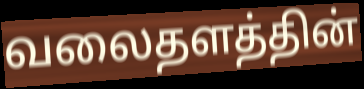
வலைதளத்தின்